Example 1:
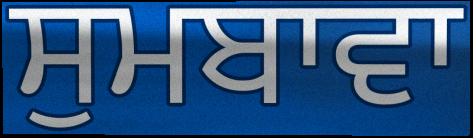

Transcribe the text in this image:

ਸੁਮਬਾਵਾ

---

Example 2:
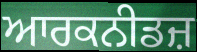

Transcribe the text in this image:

ਆਰਕਨੀਡਜ਼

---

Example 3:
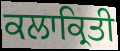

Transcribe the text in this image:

ਕਲਾਕ੍ਰਿਤੀ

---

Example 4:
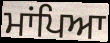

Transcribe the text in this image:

ਮਾਂਪਿਆ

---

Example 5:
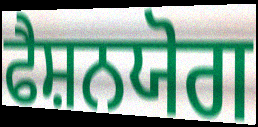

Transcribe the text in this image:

ਫੈਸ਼ਨਯੋਗ